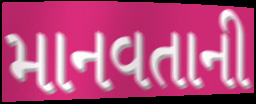
માનવતાની